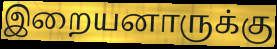
இறையனாருக்கு